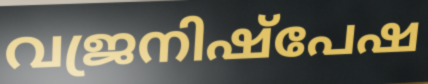
വജ്രനിഷ്പേഷ